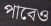
পাবেও